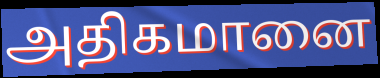
அதிகமானை